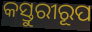
କସ୍ତୁରୀରୂପ